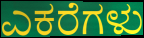
ಎಕರೆಗಳು